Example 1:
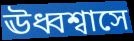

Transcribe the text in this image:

ঊধ্বশ্বাসে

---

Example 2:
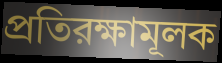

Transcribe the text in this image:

প্রতিরক্ষামূলক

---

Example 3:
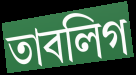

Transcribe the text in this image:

তাবলিগ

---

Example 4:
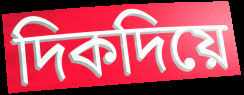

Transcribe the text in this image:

দিকদিয়ে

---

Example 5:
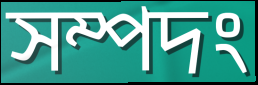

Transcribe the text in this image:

সম্পদং